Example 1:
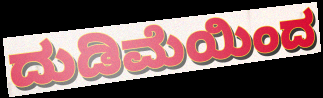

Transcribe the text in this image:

ದುಡಿಮೆಯಿಂದ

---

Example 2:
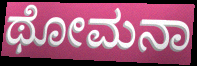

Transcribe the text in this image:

ಥೋಮನಾ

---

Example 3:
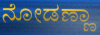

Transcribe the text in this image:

ನೋಡಣ್ಣಾ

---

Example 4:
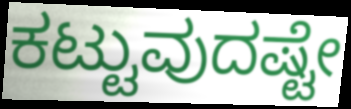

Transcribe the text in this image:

ಕಟ್ಟುವುದಷ್ಟೇ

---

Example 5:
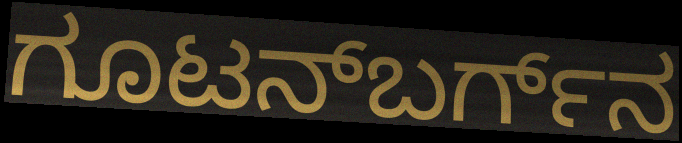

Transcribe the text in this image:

ಗೂಟನ್‌ಬರ್ಗ್‌ನ